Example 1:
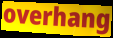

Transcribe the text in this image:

overhang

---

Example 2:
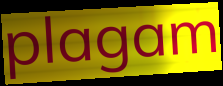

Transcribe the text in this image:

plagam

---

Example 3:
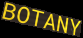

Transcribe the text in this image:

BOTANY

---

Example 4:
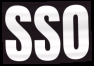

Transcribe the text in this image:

SSO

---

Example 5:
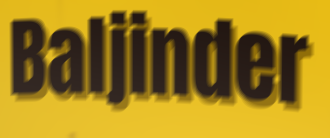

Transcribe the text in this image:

Baljinder